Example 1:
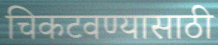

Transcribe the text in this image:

चिकटवण्यासाठी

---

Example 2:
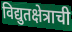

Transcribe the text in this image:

विद्युतक्षेत्राची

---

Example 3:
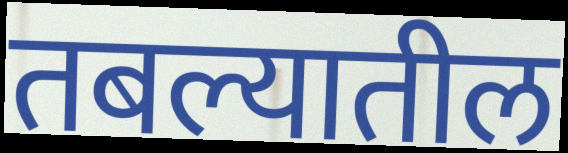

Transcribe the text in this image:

तबल्यातील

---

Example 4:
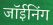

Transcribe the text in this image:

जॉईनिंग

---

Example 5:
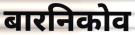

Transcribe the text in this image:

बारनिकोव